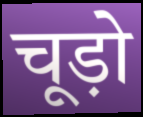
चूड़ो